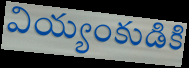
వియ్యంకుడికి